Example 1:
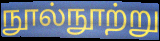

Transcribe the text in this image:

நூல்நூற்று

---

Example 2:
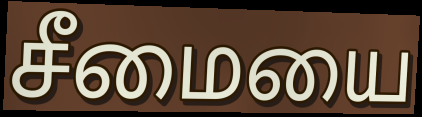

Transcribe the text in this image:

சீமையை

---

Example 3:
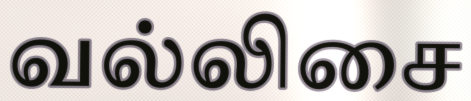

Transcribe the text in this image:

வல்லிசை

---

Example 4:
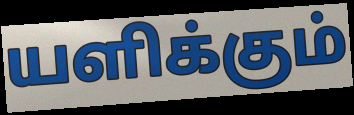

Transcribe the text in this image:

யளிக்கும்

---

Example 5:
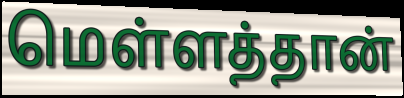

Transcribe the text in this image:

மெள்ளத்தான்